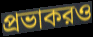
প্রভাকরও